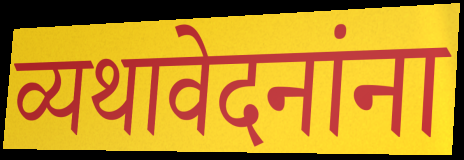
व्यथावेदनांना